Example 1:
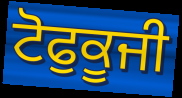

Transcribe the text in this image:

ਟੋਫੁਕੂਜੀ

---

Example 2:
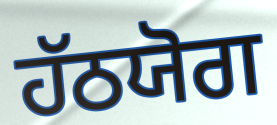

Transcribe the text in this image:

ਹੱਠਯੋਗ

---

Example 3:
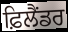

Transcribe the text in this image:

ਫ਼ਿਲੈਂਡਰ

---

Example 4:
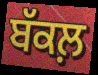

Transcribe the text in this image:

ਬੱਕਲ਼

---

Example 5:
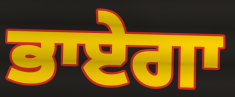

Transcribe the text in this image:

ਭਾਏਗਾ